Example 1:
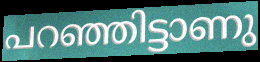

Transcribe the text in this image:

പറഞ്ഞിട്ടാണു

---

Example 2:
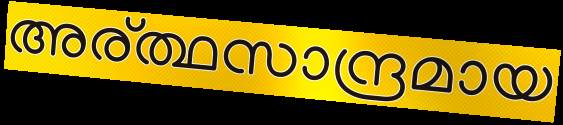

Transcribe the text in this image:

അര്ത്ഥസാന്ദ്രമായ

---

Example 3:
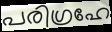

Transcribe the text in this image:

പരിഗ്രഹേ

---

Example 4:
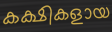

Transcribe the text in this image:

കക്ഷികളായ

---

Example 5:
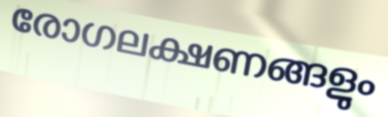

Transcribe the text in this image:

രോഗലക്ഷണങ്ങളും